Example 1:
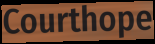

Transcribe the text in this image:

Courthope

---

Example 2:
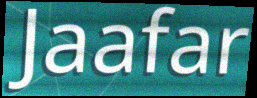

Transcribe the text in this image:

Jaafar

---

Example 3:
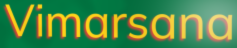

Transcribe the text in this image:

Vimarsana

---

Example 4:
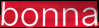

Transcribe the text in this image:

bonna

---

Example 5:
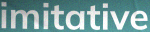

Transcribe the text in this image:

imitative